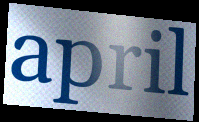
april